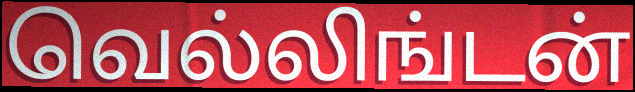
வெல்லிங்டன்